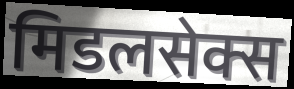
मिडलसेक्स